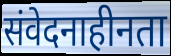
संवेदनाहीनता